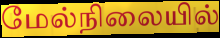
மேல்நிலையில்